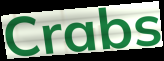
Crabs